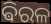
ଵିରଳ